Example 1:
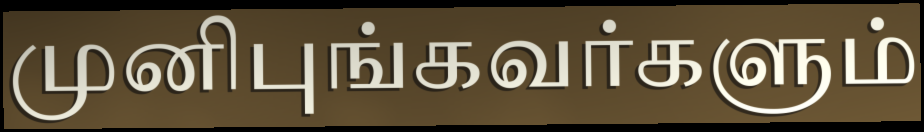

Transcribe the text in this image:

முனிபுங்கவர்களும்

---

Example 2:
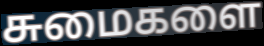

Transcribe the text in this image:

சுமைகளை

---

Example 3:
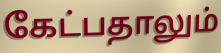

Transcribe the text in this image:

கேட்பதாலும்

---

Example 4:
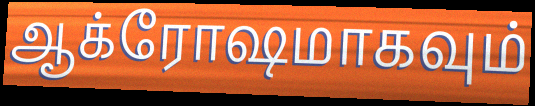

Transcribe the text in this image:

ஆக்ரோஷமாகவும்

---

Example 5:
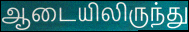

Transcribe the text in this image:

ஆடையிலிருந்து